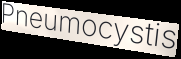
Pneumocystis